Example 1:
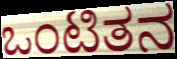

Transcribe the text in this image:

ಒಂಟಿತನ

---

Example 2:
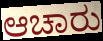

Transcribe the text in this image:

ಆಚಾರು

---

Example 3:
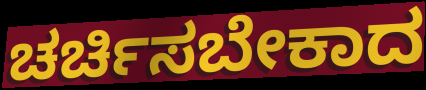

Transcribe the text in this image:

ಚರ್ಚಿಸಬೇಕಾದ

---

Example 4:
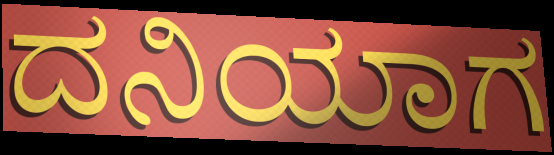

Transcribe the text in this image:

ದನಿಯಾಗ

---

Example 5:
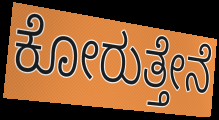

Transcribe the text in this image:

ಕೋರುತ್ತೇನೆ